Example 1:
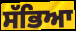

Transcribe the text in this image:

ਸੱਭਿਆ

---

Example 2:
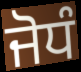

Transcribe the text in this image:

ਜੋਧੰ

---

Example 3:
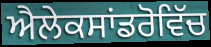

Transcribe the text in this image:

ਐਲੇਕਸਾਂਡਰੋਵਿੱਚ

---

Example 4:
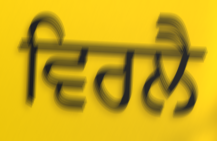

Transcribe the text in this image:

ਵਿਰਲੈ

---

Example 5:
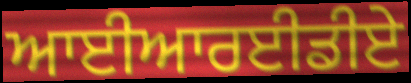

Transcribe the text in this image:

ਆਈਆਰਈਡੀਏ